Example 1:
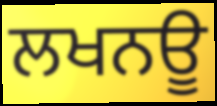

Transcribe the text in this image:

ਲਖਨਊ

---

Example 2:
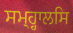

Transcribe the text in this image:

ਸਮ੍ਹ੍ਹਾਲਸਿ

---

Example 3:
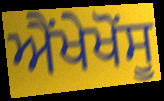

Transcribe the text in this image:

ਐਂਖੇਖੋਂਸੂ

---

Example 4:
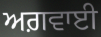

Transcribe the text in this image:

ਅਗ਼ਵਾਈ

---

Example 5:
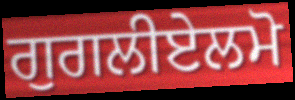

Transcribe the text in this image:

ਗੁਗਲੀਏਲਮੋ